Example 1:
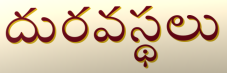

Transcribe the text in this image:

దురవస్థలు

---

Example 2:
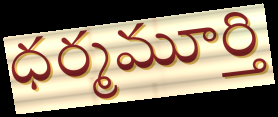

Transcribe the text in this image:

ధర్మమూర్తి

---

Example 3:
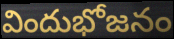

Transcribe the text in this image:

విందుభోజనం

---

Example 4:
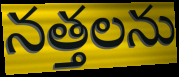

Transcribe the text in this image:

నత్తలను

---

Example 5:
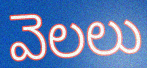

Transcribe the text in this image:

వెలలు